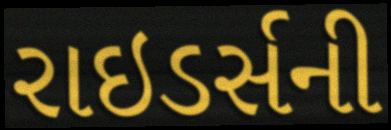
રાઇડર્સની